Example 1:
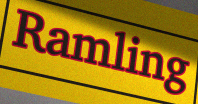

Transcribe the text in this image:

Ramling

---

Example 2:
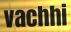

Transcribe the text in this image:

vachhi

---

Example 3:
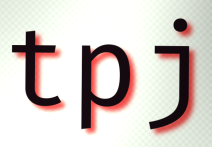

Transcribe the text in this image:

tpj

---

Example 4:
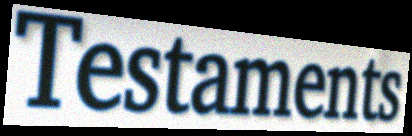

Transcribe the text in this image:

Testaments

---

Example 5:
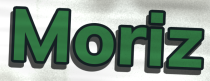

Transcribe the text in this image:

Moriz